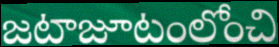
జటాజూటంలోంచి